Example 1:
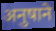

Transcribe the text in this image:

अनुषाने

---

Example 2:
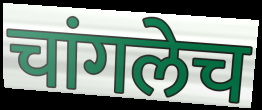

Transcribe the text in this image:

चांगलेच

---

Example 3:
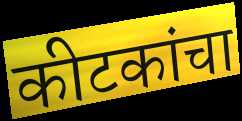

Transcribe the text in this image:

कीटकांचा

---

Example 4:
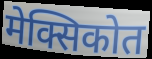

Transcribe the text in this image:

मेक्सिकोत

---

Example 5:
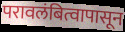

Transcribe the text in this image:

परावलंबित्वापासून